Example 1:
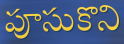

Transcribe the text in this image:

పూసుకొని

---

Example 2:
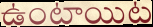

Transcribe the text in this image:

ఉంటాయిట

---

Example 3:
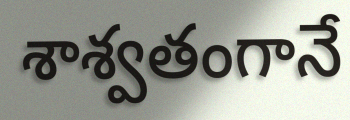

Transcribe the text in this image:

శాశ్వతంగానే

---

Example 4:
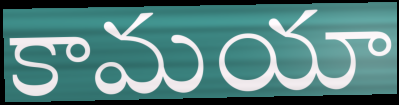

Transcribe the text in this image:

కామయా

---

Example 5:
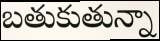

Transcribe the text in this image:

బతుకుతున్నా